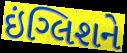
ઇંગ્લિશને